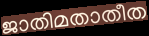
ജാതിമതാതീത